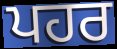
ਪਹਰ